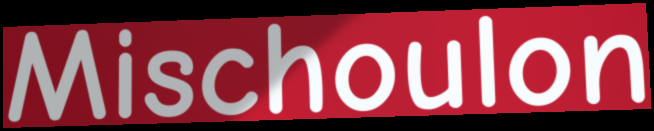
Mischoulon